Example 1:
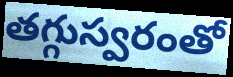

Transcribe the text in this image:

తగ్గుస్వరంతో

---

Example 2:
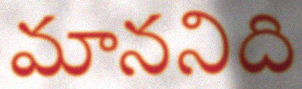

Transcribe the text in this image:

మాననిది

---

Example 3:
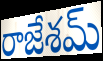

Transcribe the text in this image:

రాజేశమ్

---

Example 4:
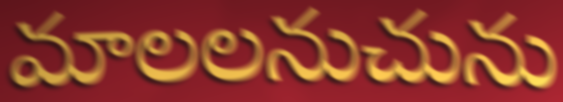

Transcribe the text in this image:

మాలలనుచును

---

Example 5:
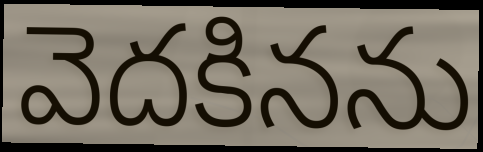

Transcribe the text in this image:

వెదకినను